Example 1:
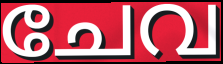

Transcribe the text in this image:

ചേവ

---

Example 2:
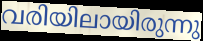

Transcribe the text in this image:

വരിയിലായിരുന്നു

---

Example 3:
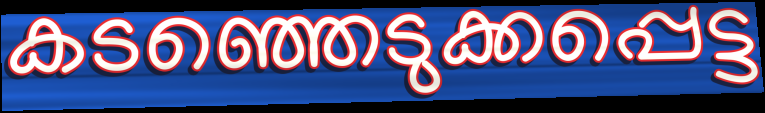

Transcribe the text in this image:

കടഞ്ഞെടുക്കപ്പെട്ട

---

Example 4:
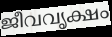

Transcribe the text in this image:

ജീവവൃക്ഷം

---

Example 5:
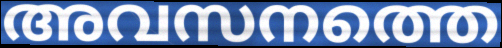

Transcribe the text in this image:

അവസനത്തെ